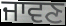
ਜਾਵਣ